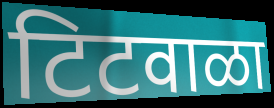
टिटवाळा